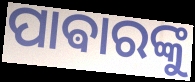
ପାଵାରଙ୍କୁ